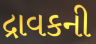
દ્રાવકની